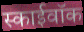
स्काईवॉक